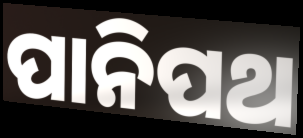
ପାନିପଥ